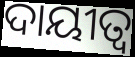
ଦାୟୀତ୍ୱ